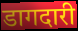
डागदारी